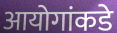
आयोगांकडे